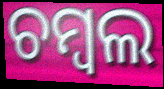
ଚମ୍ବଲ